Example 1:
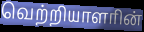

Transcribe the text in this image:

வெற்றியாளரின்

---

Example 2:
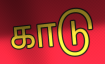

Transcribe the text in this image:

காடு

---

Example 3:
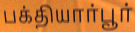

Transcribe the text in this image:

பக்தியார்பூர்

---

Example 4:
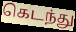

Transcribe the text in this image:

கெடந்து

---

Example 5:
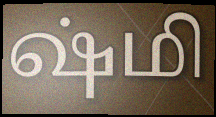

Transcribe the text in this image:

ஷ்மி